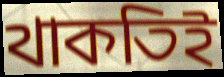
থাকতিই